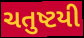
ચતુષ્ટયી